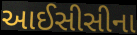
આઈસીસીના